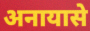
अनायासे